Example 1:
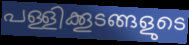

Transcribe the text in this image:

പള്ളിക്കൂടങ്ങളുടെ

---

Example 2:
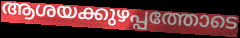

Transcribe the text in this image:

ആശയക്കുഴപ്പത്തോടെ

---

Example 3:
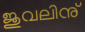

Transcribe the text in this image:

ജുവലിനു്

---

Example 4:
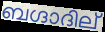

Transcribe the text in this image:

ബഗ്ദാദില്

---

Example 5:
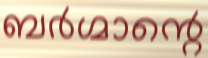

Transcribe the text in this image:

ബർഗ്മാന്റെ